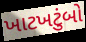
ખાટખટુંબો